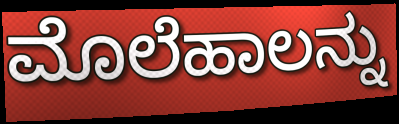
ಮೊಲೆಹಾಲನ್ನು